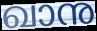
ഖാനു